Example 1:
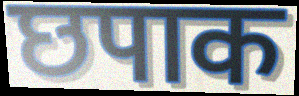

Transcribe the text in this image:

छपाक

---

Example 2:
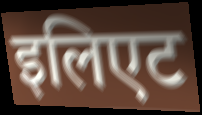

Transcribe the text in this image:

इलिएट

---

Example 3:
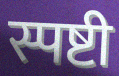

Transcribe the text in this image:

स्पष्टी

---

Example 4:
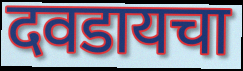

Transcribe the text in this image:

दवडायचा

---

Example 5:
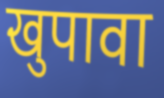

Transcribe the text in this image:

खुपावा